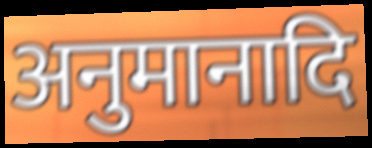
अनुमानादि